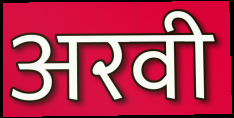
अरवी